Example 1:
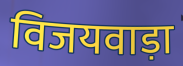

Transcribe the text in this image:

विजयवाड़ा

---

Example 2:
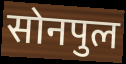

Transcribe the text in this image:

सोनपुल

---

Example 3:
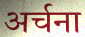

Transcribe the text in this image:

अर्चना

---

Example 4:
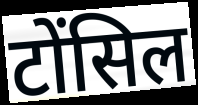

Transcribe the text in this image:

टोंसिल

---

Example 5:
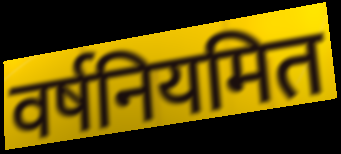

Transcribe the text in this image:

वर्षनियमित